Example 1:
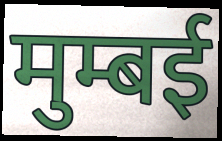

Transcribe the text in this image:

मुम्बई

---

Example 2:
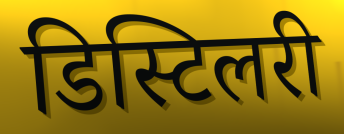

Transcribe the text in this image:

डिस्टिलरी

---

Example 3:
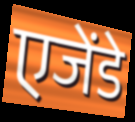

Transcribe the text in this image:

एजेंडे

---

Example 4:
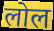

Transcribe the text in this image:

लोल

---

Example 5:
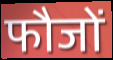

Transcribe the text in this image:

फौजों